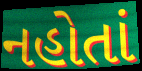
નહોતાં